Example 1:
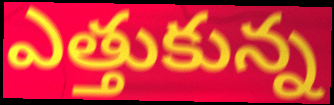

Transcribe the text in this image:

ఎత్తుకున్న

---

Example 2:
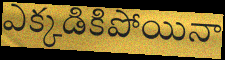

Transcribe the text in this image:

ఎక్కడికిపోయినా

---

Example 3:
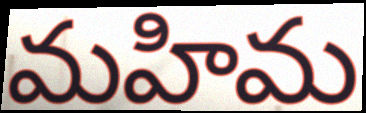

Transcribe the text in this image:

మహిమ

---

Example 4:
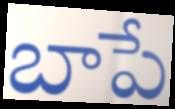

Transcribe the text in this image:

బాపే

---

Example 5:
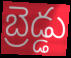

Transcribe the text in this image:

బ్రెడ్డు